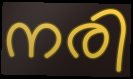
നരി